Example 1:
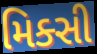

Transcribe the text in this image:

મિક્સી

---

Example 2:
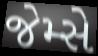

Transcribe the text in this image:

જેમ્સે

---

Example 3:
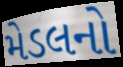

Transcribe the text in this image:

મેડલનો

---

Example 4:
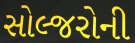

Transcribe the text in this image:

સોલ્જરોની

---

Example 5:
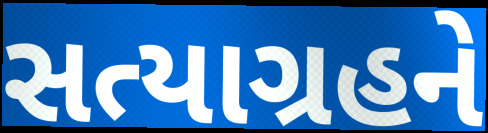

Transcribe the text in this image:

સત્યાગ્રહને